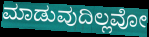
ಮಾಡುವುದಿಲ್ಲವೋ